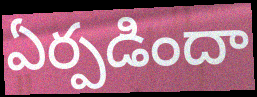
ఏర్పడిందా